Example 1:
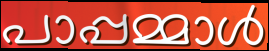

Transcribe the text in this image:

പാപ്പമ്മാൾ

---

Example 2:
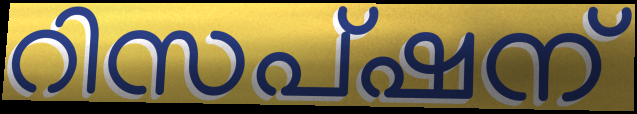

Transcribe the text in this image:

റിസപ്ഷന്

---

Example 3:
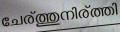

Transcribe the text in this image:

ചേര്ത്തുനിര്ത്തി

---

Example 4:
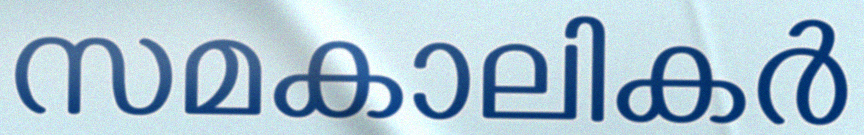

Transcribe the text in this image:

സമകാലികർ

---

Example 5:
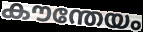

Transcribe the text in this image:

കൗന്തേയം